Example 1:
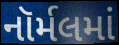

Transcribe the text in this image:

નૉર્મલમાં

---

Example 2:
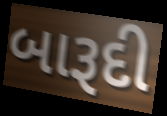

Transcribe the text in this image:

બારૂદી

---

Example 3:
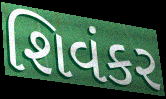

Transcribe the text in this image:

શિવંકર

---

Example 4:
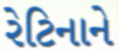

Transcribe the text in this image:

રેટિનાને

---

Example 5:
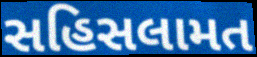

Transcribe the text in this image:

સહિસલામત